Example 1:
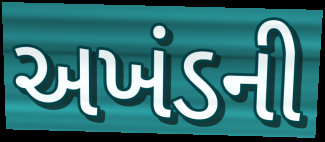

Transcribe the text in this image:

અખંડની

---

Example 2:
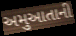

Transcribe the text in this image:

અમુઆતાની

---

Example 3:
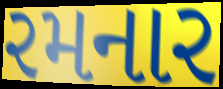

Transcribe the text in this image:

રમનાર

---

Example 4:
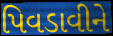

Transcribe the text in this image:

પિવડાવીને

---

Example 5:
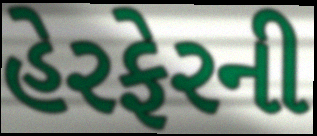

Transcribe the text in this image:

હેરફેરની